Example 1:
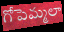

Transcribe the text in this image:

గోపెమ్మలా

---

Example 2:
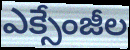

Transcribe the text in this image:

ఎక్సేంజీల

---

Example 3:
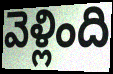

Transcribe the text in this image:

వెళ్లింది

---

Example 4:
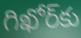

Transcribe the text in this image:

గిఖోర్‌కు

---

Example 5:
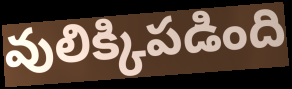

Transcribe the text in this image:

వులిక్కిపడింది